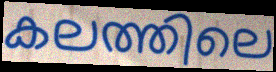
കലത്തിലെ